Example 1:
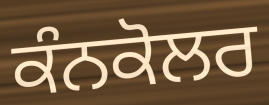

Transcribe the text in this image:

ਕੰਨਕੋਲਰ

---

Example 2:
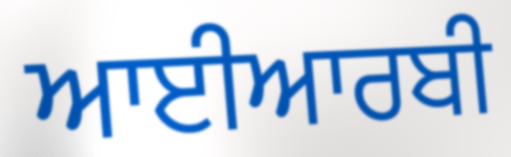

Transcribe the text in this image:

ਆਈਆਰਬੀ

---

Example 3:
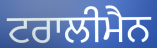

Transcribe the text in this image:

ਟਰਾਲੀਮੈਨ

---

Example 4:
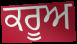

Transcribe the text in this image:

ਕਰੂਅ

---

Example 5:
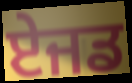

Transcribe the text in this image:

ਏਜਡ